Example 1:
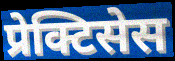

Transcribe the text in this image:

प्रेक्टिसेस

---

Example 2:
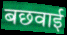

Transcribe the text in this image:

बछवाई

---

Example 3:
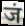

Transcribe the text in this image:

जं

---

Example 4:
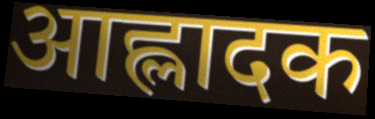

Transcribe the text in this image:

आह्लादक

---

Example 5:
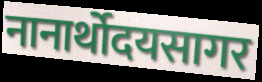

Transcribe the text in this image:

नानार्थोदयसागर